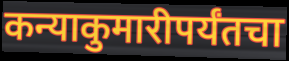
कन्याकुमारीपर्यंतचा